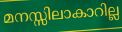
മനസ്സിലാകാറില്ല